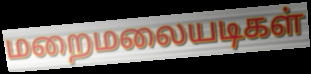
மறைமலையடிகள்